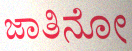
ಜಾತಿನೋ